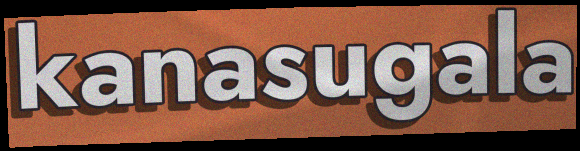
kanasugala